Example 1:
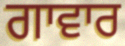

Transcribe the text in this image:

ਗਾਵਾਰ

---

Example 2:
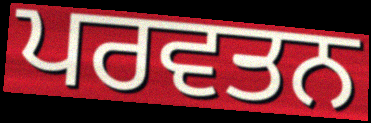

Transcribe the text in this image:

ਪਰਵਤਨ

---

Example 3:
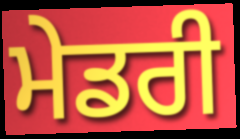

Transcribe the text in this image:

ਮੇਡਰੀ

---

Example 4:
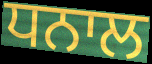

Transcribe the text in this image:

ਧਨਾਲ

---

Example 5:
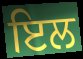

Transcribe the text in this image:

ਇਲ